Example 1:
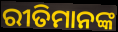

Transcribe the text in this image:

ରୀତିମାନଙ୍କ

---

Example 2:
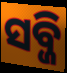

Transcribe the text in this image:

ସବ୍ଜି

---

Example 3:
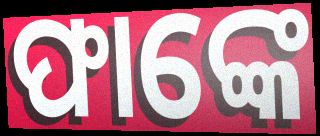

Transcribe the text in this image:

ଫାଙ୍କେ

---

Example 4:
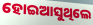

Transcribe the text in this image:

ହୋଇଆସୁଥିଲେ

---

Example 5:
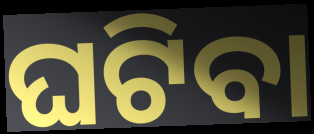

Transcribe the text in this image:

ଘଟିବା